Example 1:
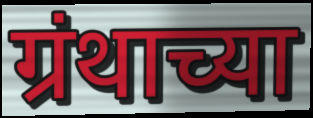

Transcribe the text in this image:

ग्रंथाच्या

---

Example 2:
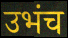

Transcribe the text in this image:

उभंच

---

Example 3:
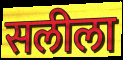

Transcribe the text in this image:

सलीला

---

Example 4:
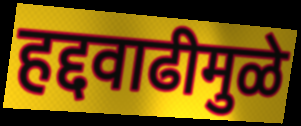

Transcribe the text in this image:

हद्दवाढीमुळे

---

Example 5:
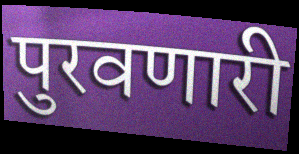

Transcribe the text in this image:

पुरवणारी